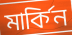
মাৰ্কিন